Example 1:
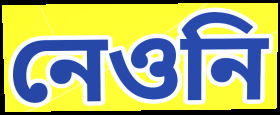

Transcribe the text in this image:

নেওনি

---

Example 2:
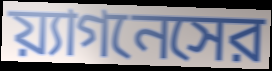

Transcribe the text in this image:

য়্যাগনেসের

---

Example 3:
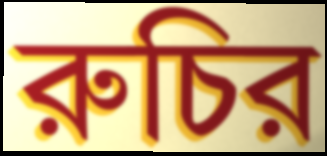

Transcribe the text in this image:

রুচির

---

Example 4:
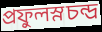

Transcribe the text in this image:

প্রফুলস্নচন্দ্র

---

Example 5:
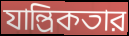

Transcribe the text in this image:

যান্ত্রিকতার